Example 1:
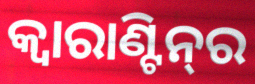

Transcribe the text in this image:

କ୍ବାରାଣ୍ଟିନ୍‌ର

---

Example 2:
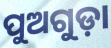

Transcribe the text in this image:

ପୁଅଗୁଡ଼ା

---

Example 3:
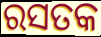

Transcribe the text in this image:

ରସତକ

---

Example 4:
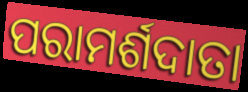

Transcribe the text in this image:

ପରାମର୍ଶଦାତା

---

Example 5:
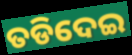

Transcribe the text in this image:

ତଡିଦେଇ